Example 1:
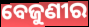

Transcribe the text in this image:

ବେଜୁଣୀର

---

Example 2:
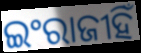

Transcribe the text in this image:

ଇଂରାଜୀହିଁ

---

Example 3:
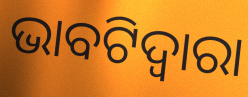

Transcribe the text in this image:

ଭାବଟିଦ୍ୱାରା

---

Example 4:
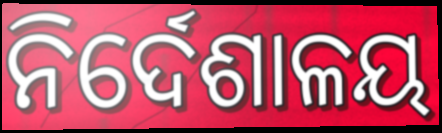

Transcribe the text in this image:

ନିର୍ଦେଶାଳୟ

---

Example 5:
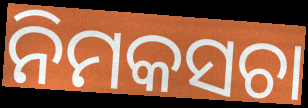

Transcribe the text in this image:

ନିମକସଚା